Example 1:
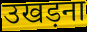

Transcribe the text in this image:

उखड़ना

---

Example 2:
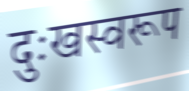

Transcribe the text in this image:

दुःखस्वरूप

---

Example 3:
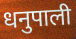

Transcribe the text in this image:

धनुपाली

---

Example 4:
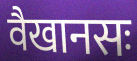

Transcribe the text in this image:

वैखानसः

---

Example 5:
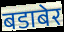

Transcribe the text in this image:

बडाबेर